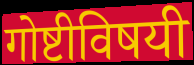
गोष्टीविषयी